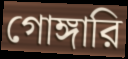
গোঙ্গারি